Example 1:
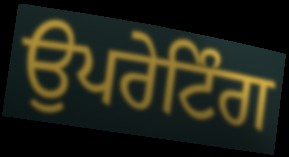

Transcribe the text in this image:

ਉਪਰੇਟਿੰਗ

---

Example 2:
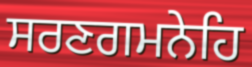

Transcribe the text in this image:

ਸਰਣਗਮਨੇਹਿ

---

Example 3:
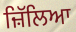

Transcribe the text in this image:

ਜ਼ਿੱਲਿਆ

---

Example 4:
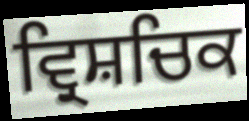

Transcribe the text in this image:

ਵ੍ਰਿਸ਼ਚਿਕ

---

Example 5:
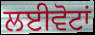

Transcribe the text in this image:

ਲਈਵੋਟਾਂ